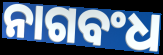
ନାଗବଂଧ